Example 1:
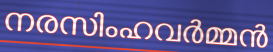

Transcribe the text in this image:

നരസിംഹവർമ്മൻ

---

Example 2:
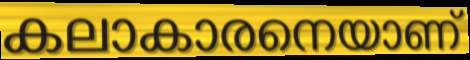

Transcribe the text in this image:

കലാകാരനെയാണ്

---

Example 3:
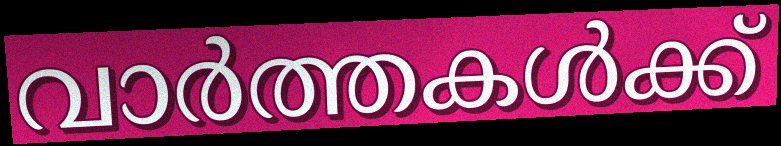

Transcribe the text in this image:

വാർത്തകൾക്ക്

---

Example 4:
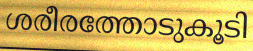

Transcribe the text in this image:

ശരീരത്തോടുകൂടി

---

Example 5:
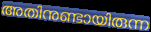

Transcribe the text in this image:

അതിനുണ്ടായിരുന്ന